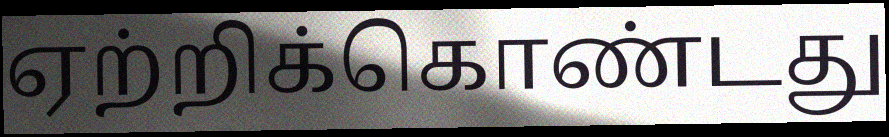
ஏற்றிக்கொண்டது